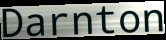
Darnton